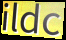
ildc